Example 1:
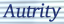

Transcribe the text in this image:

Autrity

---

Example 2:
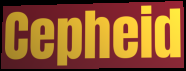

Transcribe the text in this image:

Cepheid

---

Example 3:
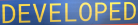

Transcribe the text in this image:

DEVELOPED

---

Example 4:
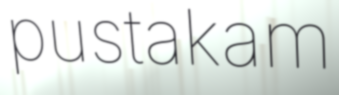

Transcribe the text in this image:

pustakam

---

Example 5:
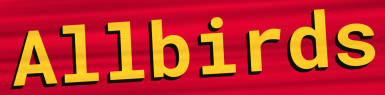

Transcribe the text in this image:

Allbirds